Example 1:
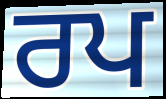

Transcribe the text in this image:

ਰਪ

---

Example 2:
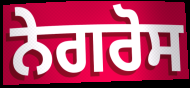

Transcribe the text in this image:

ਨੇਗਰੋਸ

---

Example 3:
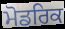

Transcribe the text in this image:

ਮੋਡਰਿਕ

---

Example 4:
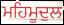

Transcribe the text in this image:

ਮਹਿਮੂਦੁਲ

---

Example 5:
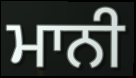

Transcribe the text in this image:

ਮਾਨੀ